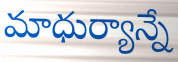
మాధుర్యాన్నే